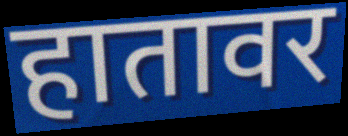
हातावर